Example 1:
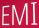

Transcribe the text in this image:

EMI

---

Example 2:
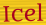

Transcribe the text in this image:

Icel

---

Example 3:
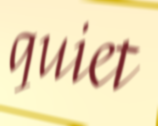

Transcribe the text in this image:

quiet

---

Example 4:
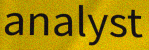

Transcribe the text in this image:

analyst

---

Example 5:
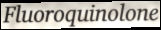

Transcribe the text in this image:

Fluoroquinolone